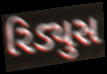
રિડ્યુસ